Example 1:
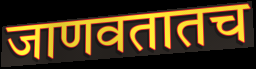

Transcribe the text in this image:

जाणवतातच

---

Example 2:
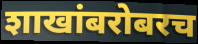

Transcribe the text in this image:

शाखांबरोबरच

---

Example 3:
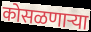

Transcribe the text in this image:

कोसळणार्‍या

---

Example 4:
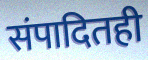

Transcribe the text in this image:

संपादितही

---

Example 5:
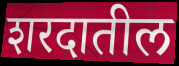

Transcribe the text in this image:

शरदातील